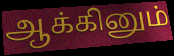
ஆக்கினும்